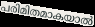
പരിമിതമാകയാൽ